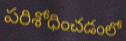
పరిశోధించడంలో